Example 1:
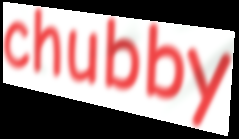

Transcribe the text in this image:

chubby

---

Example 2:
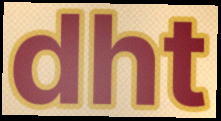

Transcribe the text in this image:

dht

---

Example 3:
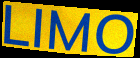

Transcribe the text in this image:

LIMO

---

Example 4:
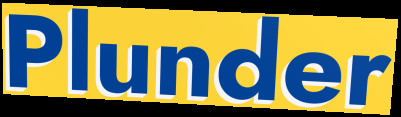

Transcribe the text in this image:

Plunder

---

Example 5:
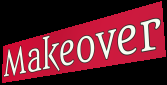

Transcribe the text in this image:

Makeover